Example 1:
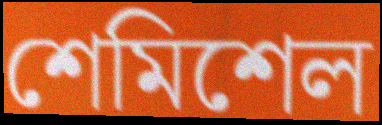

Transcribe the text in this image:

শেমিশেল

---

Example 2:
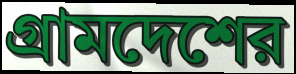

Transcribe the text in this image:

গ্রামদেশের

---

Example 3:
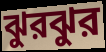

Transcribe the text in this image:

ঝুরঝুর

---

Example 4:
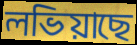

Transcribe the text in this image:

লভিয়াছে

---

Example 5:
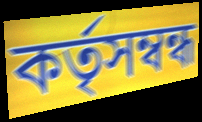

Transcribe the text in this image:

কর্তৃসম্বন্ধ